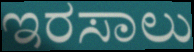
ಇರಸಾಲು